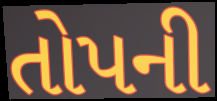
તોપની